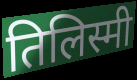
तिलिस्मी